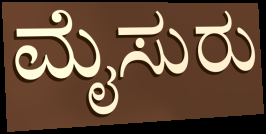
ಮೈಸುರು